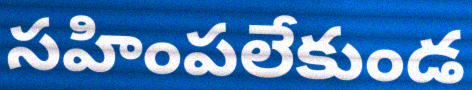
సహింపలేకుండ